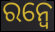
ରନ୍ୱେ